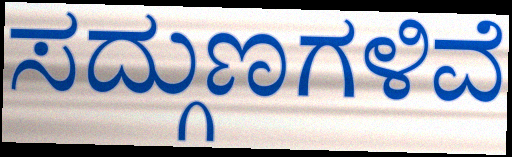
ಸದ್ಗುಣಗಳಿವೆ